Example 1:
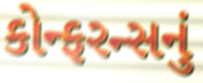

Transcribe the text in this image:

કોન્ફરન્સનું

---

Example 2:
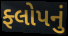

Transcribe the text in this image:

ફ્લોપનું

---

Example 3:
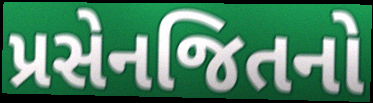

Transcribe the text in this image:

પ્રસેનજિતનો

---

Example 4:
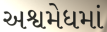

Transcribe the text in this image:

અશ્વમેધમાં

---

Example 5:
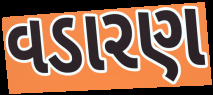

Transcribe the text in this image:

વડારણ